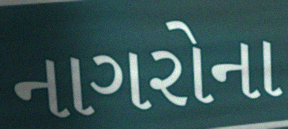
નાગરોના